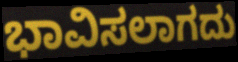
ಭಾವಿಸಲಾಗದು